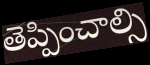
తెప్పించాల్సి